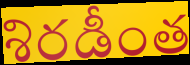
శిరడీంత